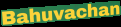
Bahuvachan